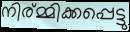
നിര്മ്മിക്കപ്പെട്ടു